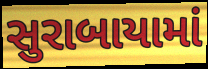
સુરાબાયામાં